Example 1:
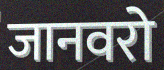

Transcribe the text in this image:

जानवरो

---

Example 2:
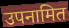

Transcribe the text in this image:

उपनामित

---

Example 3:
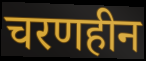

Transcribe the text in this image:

चरणहीन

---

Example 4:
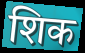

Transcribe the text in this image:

शिक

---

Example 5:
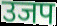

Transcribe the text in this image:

उजप